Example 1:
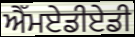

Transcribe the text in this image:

ਐੱਮਏਡੀਏਡੀ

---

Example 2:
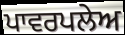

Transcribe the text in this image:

ਪਾਵਰਪਲੇਅ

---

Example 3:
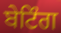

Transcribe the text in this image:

ਬੇਟਿੰਗ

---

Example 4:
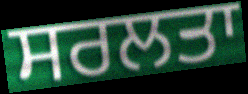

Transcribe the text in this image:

ਸਰਲਤਾ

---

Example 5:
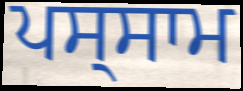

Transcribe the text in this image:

ਪਸ੍ਸਾਮ